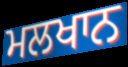
ਮਲਖਾਨ